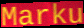
Marku